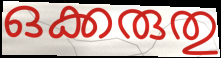
ഒക്കരുതു